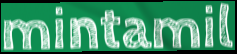
mintamil